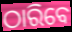
ଠାରିବେ